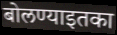
बोलण्याइतका